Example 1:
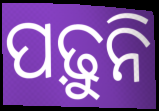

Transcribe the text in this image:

ପଢ଼ୁନି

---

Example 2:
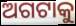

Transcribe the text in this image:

ଅଗଟାକୁ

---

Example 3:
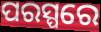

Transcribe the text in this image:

ପରସ୍ପରେ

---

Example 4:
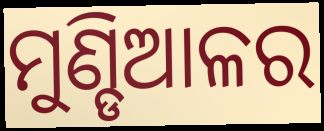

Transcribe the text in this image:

ମୁଣ୍ଡିଆଳର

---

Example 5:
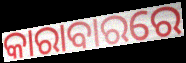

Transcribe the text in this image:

କାରାବାରରେ